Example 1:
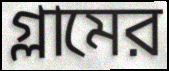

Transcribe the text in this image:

গ্লামের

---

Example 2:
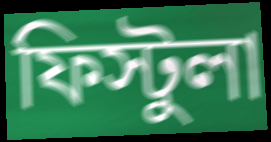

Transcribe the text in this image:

ফিস্টুলা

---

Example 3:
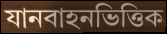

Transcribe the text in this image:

যানবাহনভিত্তিক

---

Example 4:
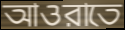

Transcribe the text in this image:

আওরাতে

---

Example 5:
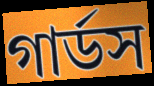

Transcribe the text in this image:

গার্ডস